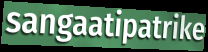
sangaatipatrike